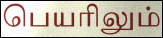
பெயரிலும்